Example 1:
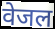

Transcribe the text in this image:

वेजल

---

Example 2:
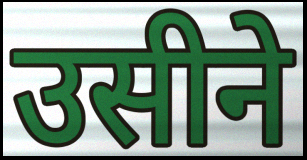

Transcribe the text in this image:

उसीने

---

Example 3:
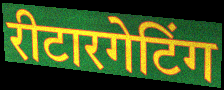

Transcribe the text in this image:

रीटारगेटिंग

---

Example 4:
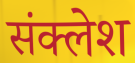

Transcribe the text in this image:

संक्लेश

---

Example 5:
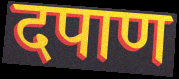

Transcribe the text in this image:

दपाण